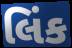
લિંક